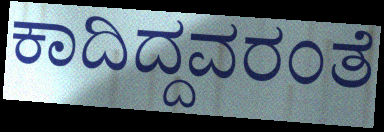
ಕಾದಿದ್ದವರಂತೆ